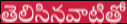
తెలిసినవాటితో